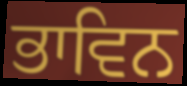
ਭਾਵਿਨ